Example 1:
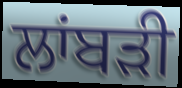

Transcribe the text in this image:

ਲਾਂਬੜੀ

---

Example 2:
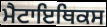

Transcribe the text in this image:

ਮੈਟਾਇਥਿਕਸ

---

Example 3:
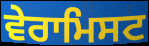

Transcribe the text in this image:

ਵੇਰਾਮਿਸਟ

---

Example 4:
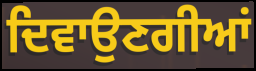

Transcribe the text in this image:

ਦਿਵਾਉਣਗੀਆਂ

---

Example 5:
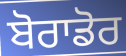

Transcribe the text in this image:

ਬੋਰਾਡੋਰ